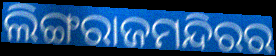
ଲିଙ୍ଗରାଜମନ୍ଦିରର